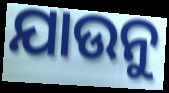
ଯାଉନୁ